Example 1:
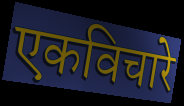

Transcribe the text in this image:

एकविचारे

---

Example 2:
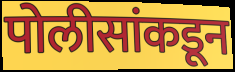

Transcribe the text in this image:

पोलीसांकडून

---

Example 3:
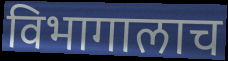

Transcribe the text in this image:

विभागालाच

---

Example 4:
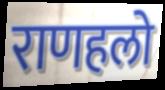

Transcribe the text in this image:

राणहलो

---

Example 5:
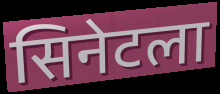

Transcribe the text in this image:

सिनेटला